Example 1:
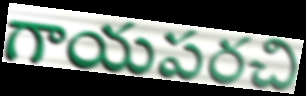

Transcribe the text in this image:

గాయపరచి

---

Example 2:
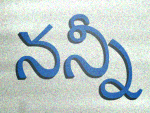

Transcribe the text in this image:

నన్నీ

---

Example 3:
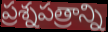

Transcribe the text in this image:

ప్రశ్నపత్రాన్ని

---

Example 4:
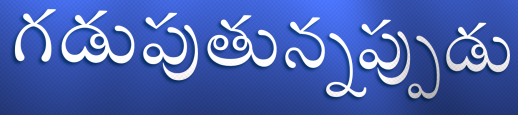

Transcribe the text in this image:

గడుపుతున్నప్పుడు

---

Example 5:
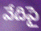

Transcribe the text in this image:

వేదిపై